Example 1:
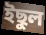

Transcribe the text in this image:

ইছুল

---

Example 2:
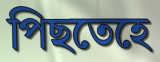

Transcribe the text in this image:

পিছতেহে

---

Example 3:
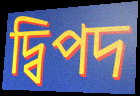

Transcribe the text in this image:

দ্বিপদ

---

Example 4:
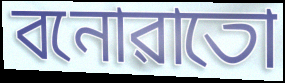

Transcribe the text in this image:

বনোৱাতো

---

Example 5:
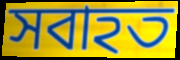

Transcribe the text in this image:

সবাহত